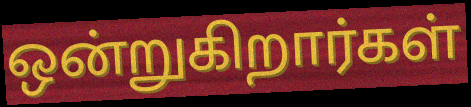
ஒன்றுகிறார்கள்